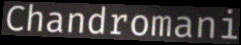
Chandromani